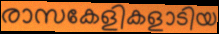
രാസകേളികളാടിയ